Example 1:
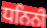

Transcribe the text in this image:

ਧਨਿਨੀ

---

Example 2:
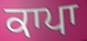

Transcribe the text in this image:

ਕਾਪਾ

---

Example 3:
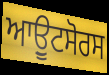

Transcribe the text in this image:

ਆਉੂਟਸੋਰਸ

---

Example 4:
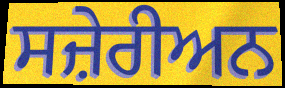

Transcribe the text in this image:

ਸਜ਼ੇਰੀਅਨ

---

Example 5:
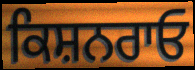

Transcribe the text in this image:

ਕਿਸ਼ਨਰਾਓ